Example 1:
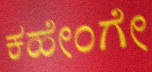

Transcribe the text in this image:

ಕಹೇಂಗೇ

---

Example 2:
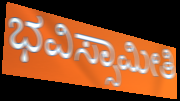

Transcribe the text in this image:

ಭವಿಸ್ಸಾಮೀತಿ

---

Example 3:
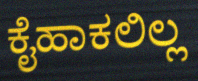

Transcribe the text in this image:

ಕೈಹಾಕಲಿಲ್ಲ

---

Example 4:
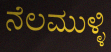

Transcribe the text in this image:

ನೆಲಮುಳ್ಳಿ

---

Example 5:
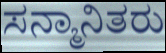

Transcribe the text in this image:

ಸನ್ಮಾನಿತರು